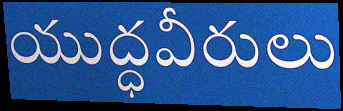
యుద్ధవీరులు